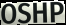
OSHP